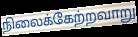
நிலைக்கேற்றவாறு